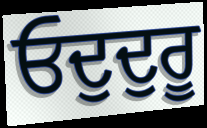
ਓਦੁਦੁਰੂ